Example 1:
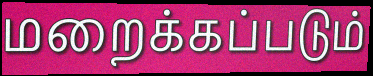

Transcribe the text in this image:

மறைக்கப்படும்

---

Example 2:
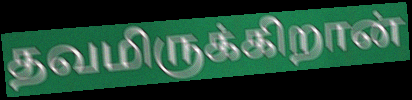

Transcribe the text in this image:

தவமிருக்கிறான்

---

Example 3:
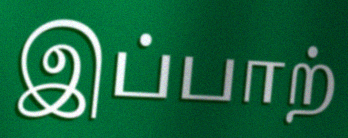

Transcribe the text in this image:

இப்பாற்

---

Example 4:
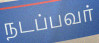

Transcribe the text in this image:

நடப்பவர்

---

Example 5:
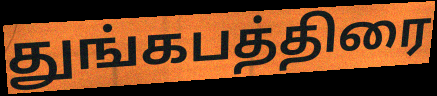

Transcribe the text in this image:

துங்கபத்திரை